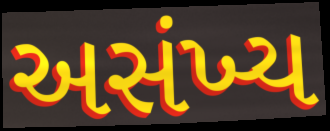
અસંખ્ય